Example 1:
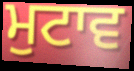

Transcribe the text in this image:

ਮੁਟਾਵ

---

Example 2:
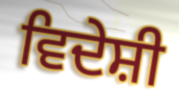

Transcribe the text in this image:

ਵਿਦੇਸ਼ੀ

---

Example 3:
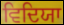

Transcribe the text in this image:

ਵਿਦਿਯਾ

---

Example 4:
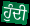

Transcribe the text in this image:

ਹੁੰਦੀ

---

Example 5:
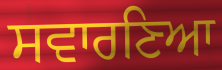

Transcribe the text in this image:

ਸਵਾਰਣਿਆ